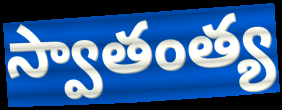
స్వాతంత్య